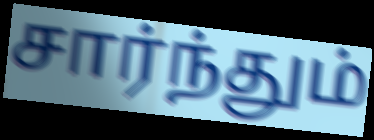
சார்ந்தும்